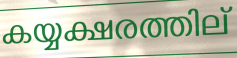
കയ്യക്ഷരത്തില്